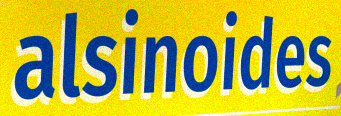
alsinoides